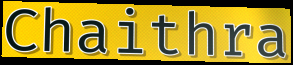
Chaithra